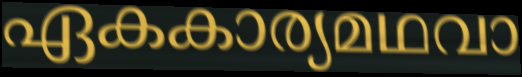
ഏകകാര്യമഥവാ